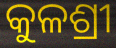
କୁଳଶ୍ରୀ